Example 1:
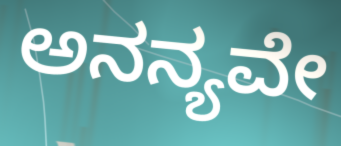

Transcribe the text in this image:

ಅನನ್ಯವೇ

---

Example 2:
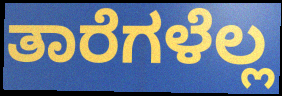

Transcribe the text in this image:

ತಾರೆಗಳೆಲ್ಲ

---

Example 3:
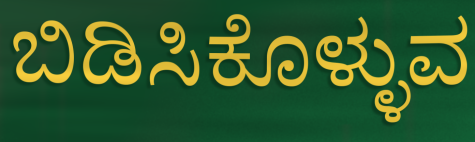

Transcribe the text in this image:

ಬಿಡಿಸಿಕೊಳ್ಳುವ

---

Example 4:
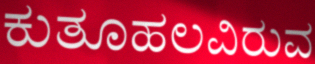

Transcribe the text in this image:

ಕುತೂಹಲವಿರುವ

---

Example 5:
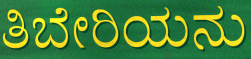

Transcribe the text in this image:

ತಿಬೇರಿಯನು